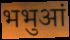
भभुआं